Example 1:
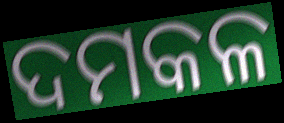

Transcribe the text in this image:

ଦମକଳ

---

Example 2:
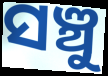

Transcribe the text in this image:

ସଞ୍ଚୁ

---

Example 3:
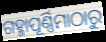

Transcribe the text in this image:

ଗହ୍ମାପୂର୍ଣ୍ଣିମାଠାରୁ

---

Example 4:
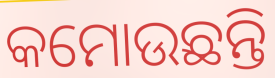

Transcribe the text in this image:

କମୋଉଛନ୍ତି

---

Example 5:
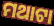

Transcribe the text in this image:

ମଥାଟା